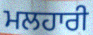
ਮਲਹਾਰੀ